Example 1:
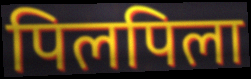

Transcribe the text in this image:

पिलपिला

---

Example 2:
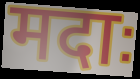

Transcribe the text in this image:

मदाः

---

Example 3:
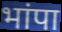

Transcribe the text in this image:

भांपा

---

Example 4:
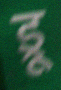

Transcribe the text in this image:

ड्रू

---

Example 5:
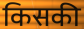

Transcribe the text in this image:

किसकी